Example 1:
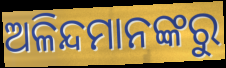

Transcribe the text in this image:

ଅଳିନ୍ଦମାନଙ୍କରୁ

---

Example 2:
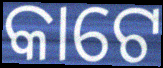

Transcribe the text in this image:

କାଟେ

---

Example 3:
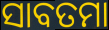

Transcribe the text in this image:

ସାବତମା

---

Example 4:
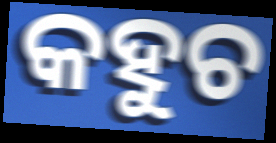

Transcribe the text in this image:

କହୁଚ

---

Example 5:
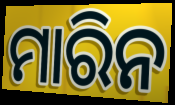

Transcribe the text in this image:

ମାରିନ